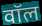
वॉल